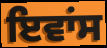
ਇਵਾਂਸ